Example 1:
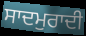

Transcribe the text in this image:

ਸਾਦਮੁਰਾਦੀ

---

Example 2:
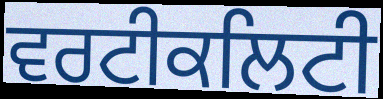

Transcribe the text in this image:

ਵਰਟੀਕਲਿਟੀ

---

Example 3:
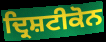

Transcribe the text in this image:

ਦ੍ਰਿਸ਼ਟੀਕੋਨ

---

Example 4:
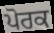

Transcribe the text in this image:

ਪੋਰਕ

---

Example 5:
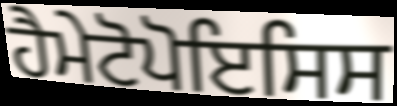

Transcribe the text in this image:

ਹੈਮੇਟੋਪੋਇਸਿਸ